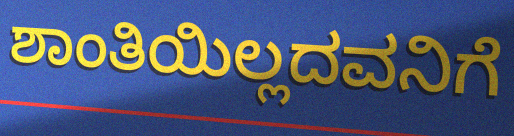
ಶಾಂತಿಯಿಲ್ಲದವನಿಗೆ